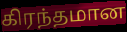
கிரந்தமான